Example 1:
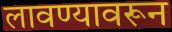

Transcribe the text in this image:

लावण्यावरून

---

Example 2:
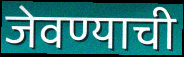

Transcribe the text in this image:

जेवण्याची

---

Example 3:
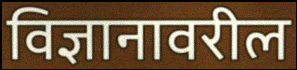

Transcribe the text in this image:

विज्ञानावरील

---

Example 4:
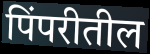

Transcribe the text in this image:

पिंपरीतील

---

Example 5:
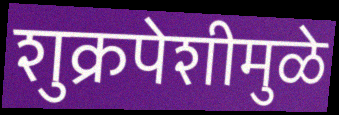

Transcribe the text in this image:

शुक्रपेशीमुळे